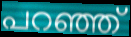
പറഞ്ഞ്